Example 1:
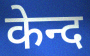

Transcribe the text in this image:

केन्द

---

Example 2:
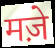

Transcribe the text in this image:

मज़े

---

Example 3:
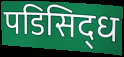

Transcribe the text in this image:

पडिसिद्ध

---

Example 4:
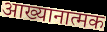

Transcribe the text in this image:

आख्यानात्मक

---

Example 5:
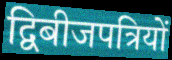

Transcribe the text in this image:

द्विबीजपत्रियों